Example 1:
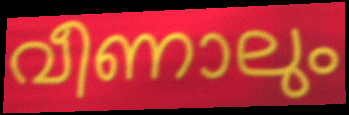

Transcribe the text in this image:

വീണാലും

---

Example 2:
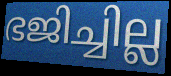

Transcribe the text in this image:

ഭജിച്ചില്ല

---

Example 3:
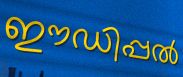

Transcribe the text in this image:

ഈഡിപ്പൽ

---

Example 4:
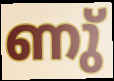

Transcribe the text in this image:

ണു്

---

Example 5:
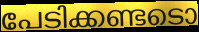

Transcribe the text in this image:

പേടിക്കണ്ടടൊ